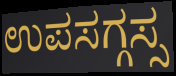
ಉಪಸಗ್ಗಸ್ಸ